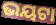
ଭୟଟା